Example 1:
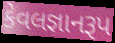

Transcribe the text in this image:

કેવલજ્ઞાનરૂપ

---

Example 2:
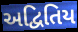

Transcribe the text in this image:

અદ્વિતિય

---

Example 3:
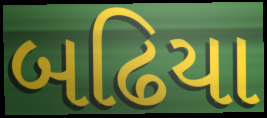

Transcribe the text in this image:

બઢિયા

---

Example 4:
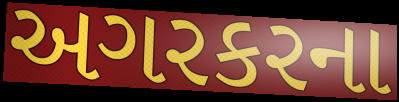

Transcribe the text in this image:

અગરકરના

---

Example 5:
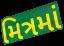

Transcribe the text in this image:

મિત્રમાં